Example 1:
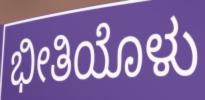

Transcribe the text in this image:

ಭೀತಿಯೊಳು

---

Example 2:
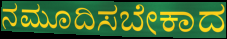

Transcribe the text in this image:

ನಮೂದಿಸಬೇಕಾದ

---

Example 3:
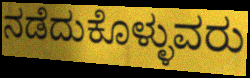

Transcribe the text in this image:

ನಡೆದುಕೊಳ್ಳುವರು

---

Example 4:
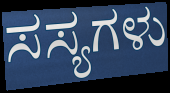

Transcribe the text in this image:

ಸಸ್ಯಗಳು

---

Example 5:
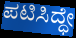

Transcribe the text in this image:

ಪಟಿಸಿದ್ಧೇ